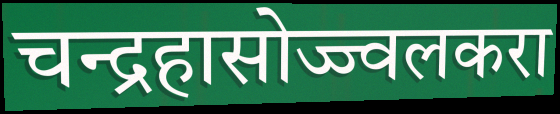
चन्द्रहासोज्ज्वलकरा